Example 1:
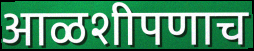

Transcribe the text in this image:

आळशीपणाच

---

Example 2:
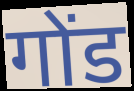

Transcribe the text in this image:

गोंड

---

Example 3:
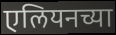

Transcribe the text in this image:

एलियनच्या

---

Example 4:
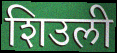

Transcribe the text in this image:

शिउली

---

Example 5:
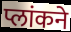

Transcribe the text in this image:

प्लांकने